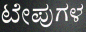
ಟೇಪುಗಳ